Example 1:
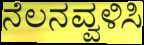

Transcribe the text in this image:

ನೆಲನವ್ವಳಿಸಿ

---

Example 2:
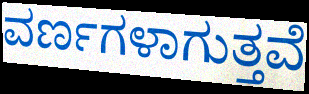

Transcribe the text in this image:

ವರ್ಣಗಳಾಗುತ್ತವೆ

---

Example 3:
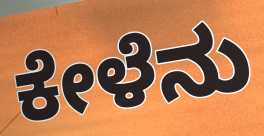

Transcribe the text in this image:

ಕೇಳೆನು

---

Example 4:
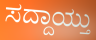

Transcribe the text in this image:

ಸದ್ದಾಯ್ತು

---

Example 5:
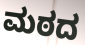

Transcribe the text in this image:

ಮಠದ